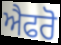
ਐਫਰੋ